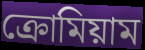
ক্রোমিয়াম